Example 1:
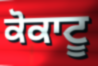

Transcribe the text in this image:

ਕੋਕਾਟੂ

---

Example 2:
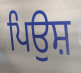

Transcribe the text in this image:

ਪਿਉਸ਼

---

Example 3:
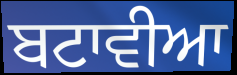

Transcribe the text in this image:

ਬਟਾਵੀਆ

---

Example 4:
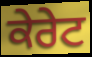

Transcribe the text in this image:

ਕੇਰੇਟ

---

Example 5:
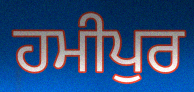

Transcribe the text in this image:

ਹਮੀਪੁਰ